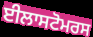
ਈਲਾਸਟੋਮਰਸ